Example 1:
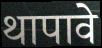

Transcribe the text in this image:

थापावे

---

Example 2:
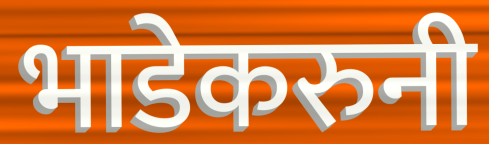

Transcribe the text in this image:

भाडेकरुनी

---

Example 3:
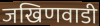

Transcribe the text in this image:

जखिणवाडी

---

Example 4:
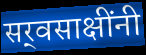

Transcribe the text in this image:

सर्वसाक्षींनी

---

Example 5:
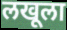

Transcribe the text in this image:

लखूला